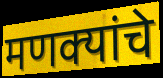
मणक्यांचे